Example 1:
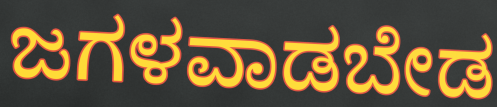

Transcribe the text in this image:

ಜಗಳವಾಡಬೇಡ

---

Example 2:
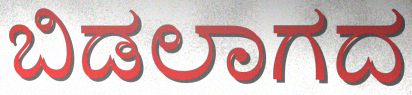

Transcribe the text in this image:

ಬಿಡಲಾಗದ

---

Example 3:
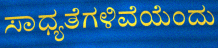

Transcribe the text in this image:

ಸಾಧ್ಯತೆಗಳಿವೆಯೆಂದು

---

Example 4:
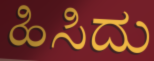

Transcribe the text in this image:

ಹಿಸಿದು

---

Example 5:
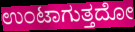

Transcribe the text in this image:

ಉಂಟಾಗುತ್ತದೋ